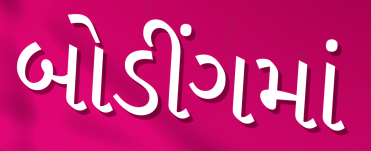
બોડીંગમાં